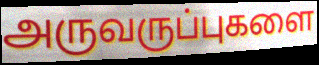
அருவருப்புகளை